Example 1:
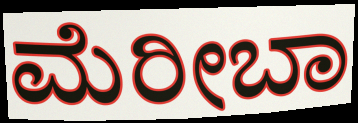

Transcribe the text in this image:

ಮೆರೀಬಾ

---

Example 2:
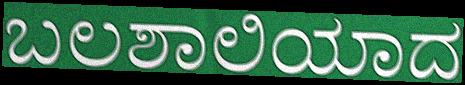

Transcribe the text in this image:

ಬಲಶಾಲಿಯಾದ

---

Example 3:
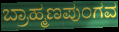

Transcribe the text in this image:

ಬ್ರಾಹ್ಮಣಪುಂಗವ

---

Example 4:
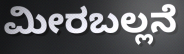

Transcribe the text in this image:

ಮೀರಬಲ್ಲನೆ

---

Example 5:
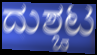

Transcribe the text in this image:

ದುಶ್ಚಟ